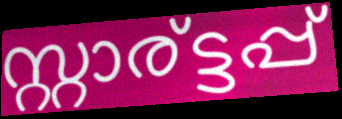
സ്റ്റാര്ട്ടപ്പ്